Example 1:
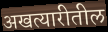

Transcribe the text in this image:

अखत्यारीतील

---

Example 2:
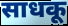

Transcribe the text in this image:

साधकू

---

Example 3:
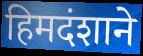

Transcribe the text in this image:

हिमदंशाने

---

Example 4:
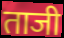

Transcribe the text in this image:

ताजी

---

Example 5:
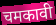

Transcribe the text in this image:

चमकावी